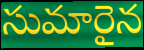
సుమారైన